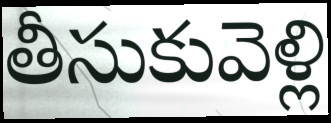
తీసుకువెళ్లి